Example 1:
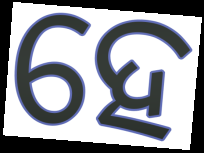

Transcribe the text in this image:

ହେ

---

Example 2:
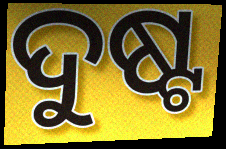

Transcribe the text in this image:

ଦୁଷ୍ଟ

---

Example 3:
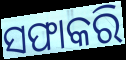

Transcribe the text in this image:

ସଫାକରି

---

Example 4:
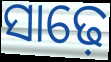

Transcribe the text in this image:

ସାଢ଼େ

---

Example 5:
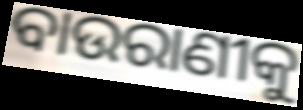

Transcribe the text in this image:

ବାଉରାଣୀକୁ